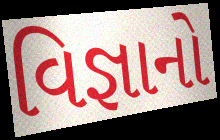
વિજ્ઞાનો